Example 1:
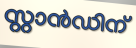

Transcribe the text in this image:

സ്റ്റാൻഡിന്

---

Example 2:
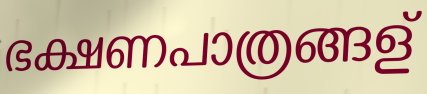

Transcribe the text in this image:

ഭക്ഷണപാത്രങ്ങള്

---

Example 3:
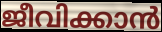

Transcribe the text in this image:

ജീവിക്കാൻ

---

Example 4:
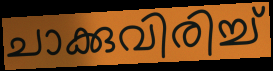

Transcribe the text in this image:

ചാക്കുവിരിച്ച്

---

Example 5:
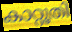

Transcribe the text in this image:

കാറ്റൂതി